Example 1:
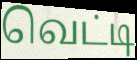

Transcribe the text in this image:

வெட்டி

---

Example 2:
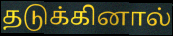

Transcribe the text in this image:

தடுக்கினால்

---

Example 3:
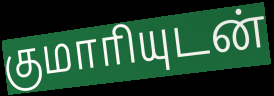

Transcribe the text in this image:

குமாரியுடன்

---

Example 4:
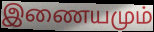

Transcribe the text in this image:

இணையமும்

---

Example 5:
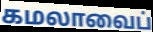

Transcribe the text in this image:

கமலாவைப்